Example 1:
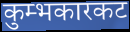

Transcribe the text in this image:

कुम्भकारकट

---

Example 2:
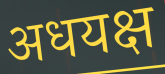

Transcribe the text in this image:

अधयक्ष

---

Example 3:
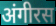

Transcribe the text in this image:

अंगीरस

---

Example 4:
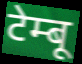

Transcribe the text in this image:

टेम्बू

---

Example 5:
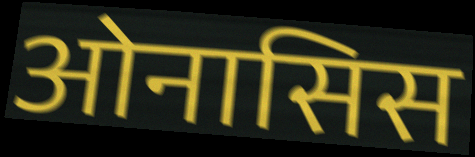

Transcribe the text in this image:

ओनासिस